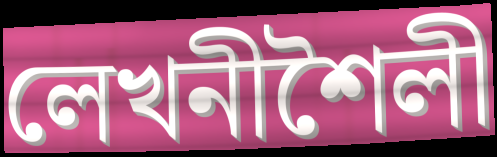
লেখনীশৈলী